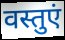
वस्तुएं